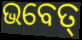
ଭବେତ୍